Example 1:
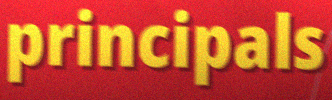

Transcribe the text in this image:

principals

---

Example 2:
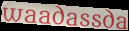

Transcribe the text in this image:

waadassda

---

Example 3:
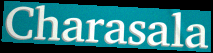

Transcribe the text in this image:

Charasala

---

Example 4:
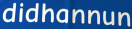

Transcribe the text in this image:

didhannun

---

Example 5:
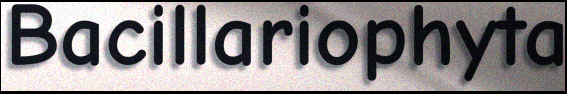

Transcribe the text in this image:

Bacillariophyta